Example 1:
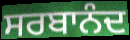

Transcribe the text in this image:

ਸਰਬਾਨੰਦ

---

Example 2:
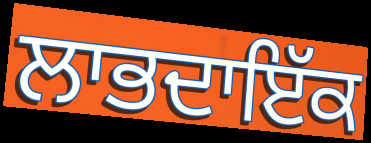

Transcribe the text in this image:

ਲਾਭਦਾਇੱਕ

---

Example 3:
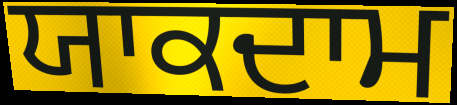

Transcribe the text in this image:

ਯਾਕਦਾਮ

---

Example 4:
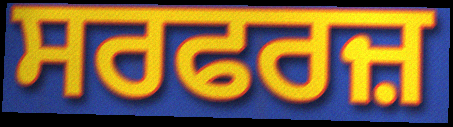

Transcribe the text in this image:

ਸਰਫਰਜ਼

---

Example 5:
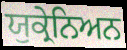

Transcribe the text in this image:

ਯੁਕ੍ਰੇਨਿਅਨ